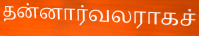
தன்னார்வலராகச்